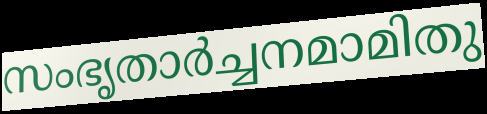
സംഭൃതാർച്ചനമാമിതു